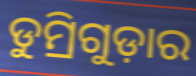
ଡୁମ୍ରିଗୁଡ଼ାର